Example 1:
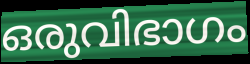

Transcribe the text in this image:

ഒരുവിഭാഗം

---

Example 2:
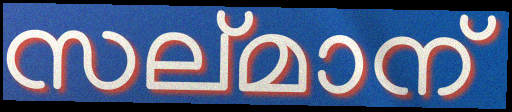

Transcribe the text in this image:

സല്മാന്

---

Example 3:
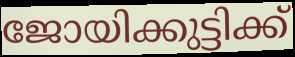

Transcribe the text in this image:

ജോയിക്കുട്ടിക്ക്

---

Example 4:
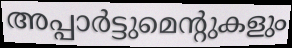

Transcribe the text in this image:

അപ്പാർട്ടുമെന്റുകളും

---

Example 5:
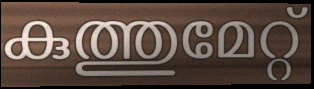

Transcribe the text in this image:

കുത്തുമേറ്റ്